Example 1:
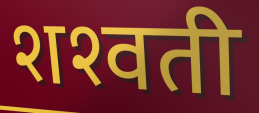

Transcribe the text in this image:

शश्वती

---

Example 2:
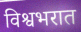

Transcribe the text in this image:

विश्वभरात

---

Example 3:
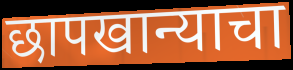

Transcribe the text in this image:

छापखान्याचा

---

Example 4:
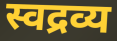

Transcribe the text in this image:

स्वद्रव्य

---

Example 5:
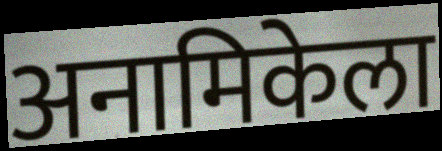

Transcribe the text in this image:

अनामिकेला